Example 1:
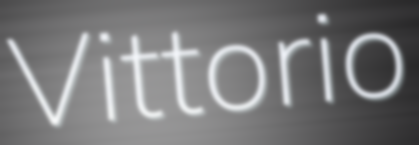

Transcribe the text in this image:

Vittorio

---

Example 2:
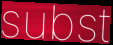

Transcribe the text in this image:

subst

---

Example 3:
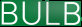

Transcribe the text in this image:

BULB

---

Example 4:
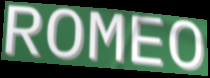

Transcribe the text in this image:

ROMEO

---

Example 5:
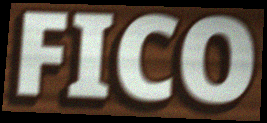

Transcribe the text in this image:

FICO